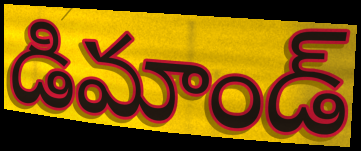
డిమాండ్